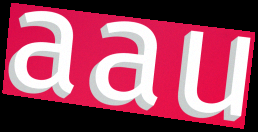
aau